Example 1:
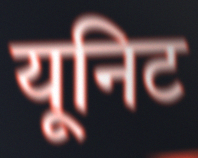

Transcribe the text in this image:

यूनिट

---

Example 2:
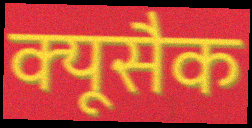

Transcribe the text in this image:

क्यूसैक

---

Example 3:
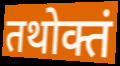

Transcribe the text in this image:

तथोक्तं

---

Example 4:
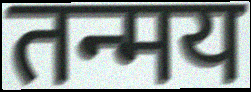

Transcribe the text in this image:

तन्‍मय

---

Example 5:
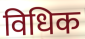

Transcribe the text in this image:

विधिक